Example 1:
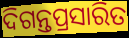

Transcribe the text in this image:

ଦିଗନ୍ତପ୍ରସାରିତ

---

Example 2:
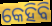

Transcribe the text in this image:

କେହିବି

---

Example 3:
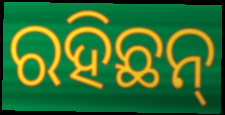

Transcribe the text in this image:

ରହିଛନ୍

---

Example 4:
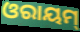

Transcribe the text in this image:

ଓରାୟମ୍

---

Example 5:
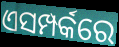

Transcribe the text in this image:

ଏସମ୍ପର୍କରେ